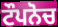
ਟੌਪਨੋਚ